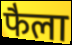
फैला